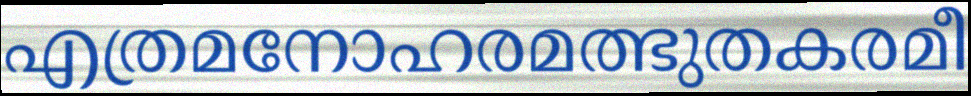
എത്രമനോഹരമത്ഭുതകരമീ